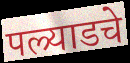
पल्याडचे